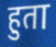
हुता